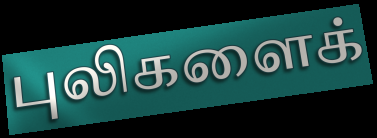
புலிகளைக்